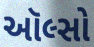
ઑલ્સો